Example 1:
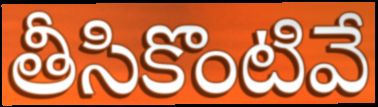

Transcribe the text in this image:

తీసికొంటివే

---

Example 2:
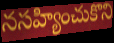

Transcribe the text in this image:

నసహ్యించుకొని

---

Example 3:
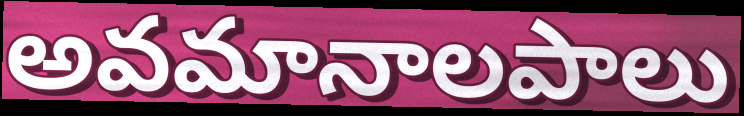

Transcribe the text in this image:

అవమానాలపాలు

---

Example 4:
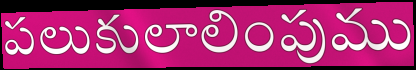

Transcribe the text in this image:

పలుకులాలింపుము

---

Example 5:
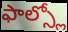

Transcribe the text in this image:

ఫాల్స్లో